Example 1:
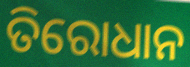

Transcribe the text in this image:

ତିରୋଧାନ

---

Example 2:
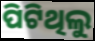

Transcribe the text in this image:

ପିଟିଥିଲୁ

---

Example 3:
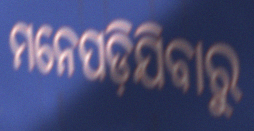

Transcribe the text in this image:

ମନେପଡ଼ିଯିବାରୁ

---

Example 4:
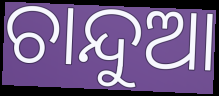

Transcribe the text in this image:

ଚାନ୍ଦୁଆ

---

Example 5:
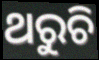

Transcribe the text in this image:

ଥରୁଚି